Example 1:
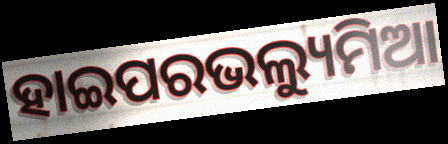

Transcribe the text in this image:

ହାଇପରଭଲ୍ୟୁମିଆ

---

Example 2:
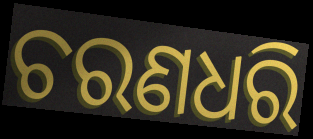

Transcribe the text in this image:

ଚରଣଧରି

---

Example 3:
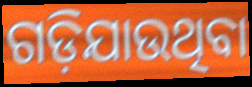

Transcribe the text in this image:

ଗଡ଼ିଯାଉଥିବା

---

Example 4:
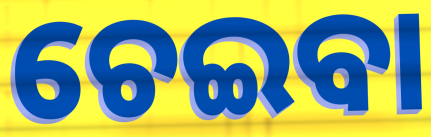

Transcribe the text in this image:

ଚେଇବା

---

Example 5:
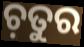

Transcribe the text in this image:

ଚ଼ତୁର